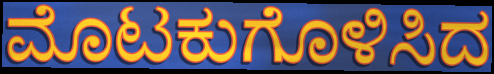
ಮೊಟಕುಗೊಳಿಸಿದ